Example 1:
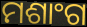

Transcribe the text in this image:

ମଶାଂଗ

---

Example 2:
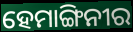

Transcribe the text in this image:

ହେମାଙ୍ଗିନୀର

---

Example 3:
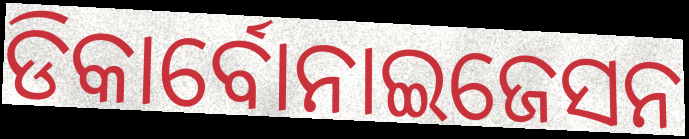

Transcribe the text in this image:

ଡିକାର୍ବୋନାଇଜେସନ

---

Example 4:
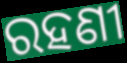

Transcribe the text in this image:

ରହଣୀ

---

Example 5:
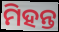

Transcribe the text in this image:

ମିହନ୍ତ